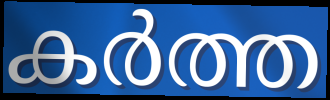
കർത്ത